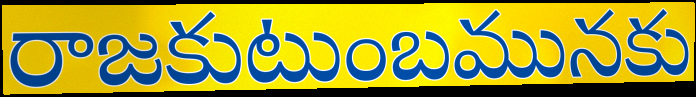
రాజకుటుంబమునకు